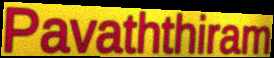
Pavaththiram